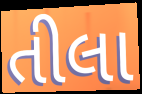
તીલા